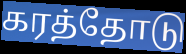
கரத்தோடு